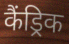
कैंड्रिक